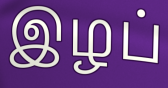
இழப்